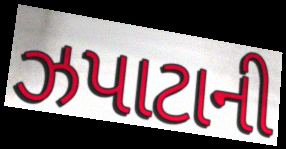
ઝપાટાની